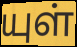
யுள்